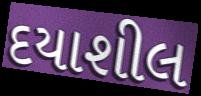
દયાશીલ